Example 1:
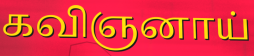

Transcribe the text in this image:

கவிஞனாய்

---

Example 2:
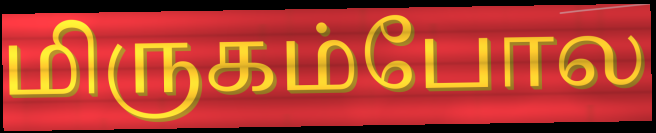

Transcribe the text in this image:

மிருகம்போல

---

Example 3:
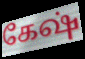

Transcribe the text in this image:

கேஷ்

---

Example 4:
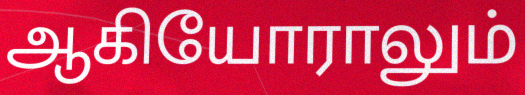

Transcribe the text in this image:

ஆகியோராலும்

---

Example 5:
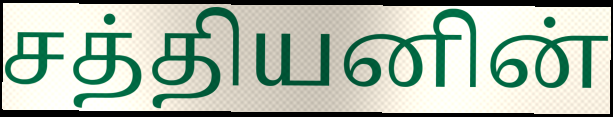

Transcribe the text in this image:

சத்தியனின்